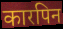
कारपिन